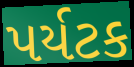
પર્યટક